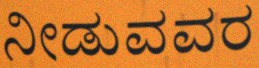
ನೀಡುವವರ